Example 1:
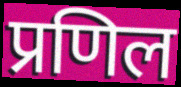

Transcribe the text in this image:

प्रणिल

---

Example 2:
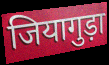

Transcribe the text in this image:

जियागुड़ा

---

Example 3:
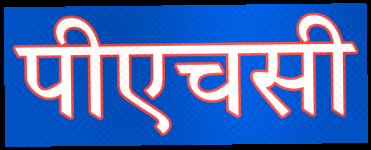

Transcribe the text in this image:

पीएचसी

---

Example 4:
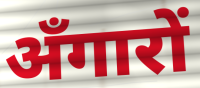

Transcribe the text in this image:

अँगारों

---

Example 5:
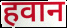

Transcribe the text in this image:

हवान